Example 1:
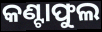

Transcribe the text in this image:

କଣ୍ଟାଫୁଲ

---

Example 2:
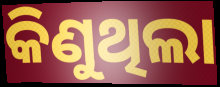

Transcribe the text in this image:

କିଣୁଥିଲା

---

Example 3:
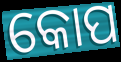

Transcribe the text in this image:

କୋପ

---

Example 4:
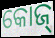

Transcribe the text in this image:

କୋଜ୍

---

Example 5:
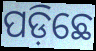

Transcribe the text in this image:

ପଡ଼ିଛେ